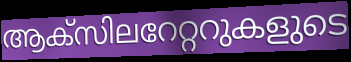
ആക്സിലറേറ്ററുകളുടെ